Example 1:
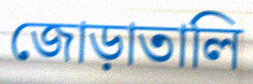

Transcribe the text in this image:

জোড়াতালি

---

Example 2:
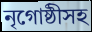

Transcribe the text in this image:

নৃগোষ্ঠীসহ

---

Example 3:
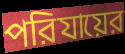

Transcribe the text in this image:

পরিযায়ের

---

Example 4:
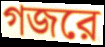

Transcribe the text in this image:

গজরে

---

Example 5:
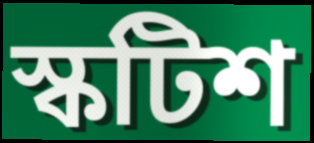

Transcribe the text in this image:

স্কটিশ